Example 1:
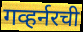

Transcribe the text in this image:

गव्हर्नरची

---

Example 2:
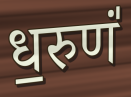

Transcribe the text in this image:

ध॒रुणं॑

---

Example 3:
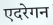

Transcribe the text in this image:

एदरेगन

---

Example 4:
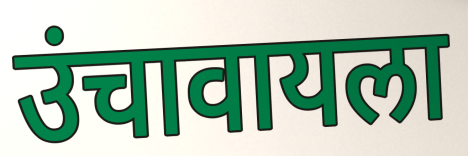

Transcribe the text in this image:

उंचावायला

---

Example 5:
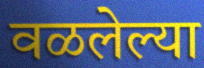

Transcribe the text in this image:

वळलेल्या